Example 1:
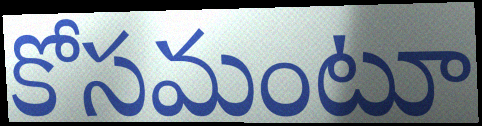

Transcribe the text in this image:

కోసమంటూ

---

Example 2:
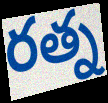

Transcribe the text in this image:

రత్న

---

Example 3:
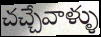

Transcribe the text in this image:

చచ్చేవాళ్ళు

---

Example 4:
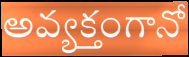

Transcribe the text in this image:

అవ్యక్తంగానో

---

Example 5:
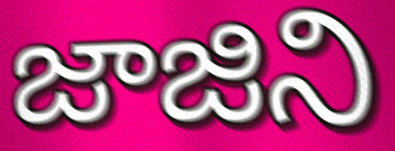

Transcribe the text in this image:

జాజిని